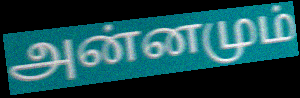
அன்னமும்